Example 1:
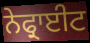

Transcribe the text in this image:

ਨੇਫ੍ਰਾਈਟ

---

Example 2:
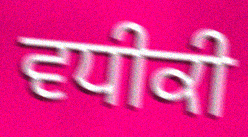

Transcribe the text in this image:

ਵਧੀਕੀ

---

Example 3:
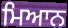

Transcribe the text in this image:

ਮਿਆਨ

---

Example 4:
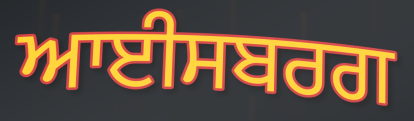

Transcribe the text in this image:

ਆਈਸਬਰਗ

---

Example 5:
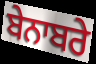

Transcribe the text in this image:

ਬੇਨਾਬਰੇ